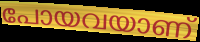
പോയവയാണ്